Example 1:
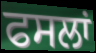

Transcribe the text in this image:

ਫਸਲਾਂ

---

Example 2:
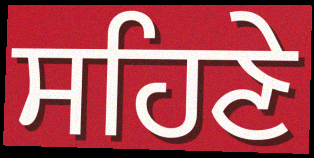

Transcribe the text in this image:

ਸਹਿਣੇ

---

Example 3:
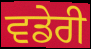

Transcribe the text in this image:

ਵਡੇਰੀ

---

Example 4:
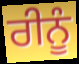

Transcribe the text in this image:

ਰੀਨੂੰ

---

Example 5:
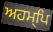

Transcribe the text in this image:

ਅਹਮ੍ਪਿ